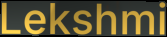
Lekshmi